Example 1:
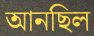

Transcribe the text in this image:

আনছিল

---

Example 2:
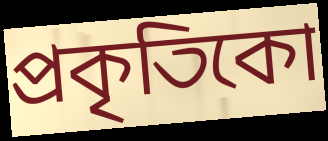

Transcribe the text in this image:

প্ৰকৃতিকো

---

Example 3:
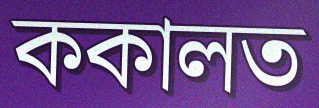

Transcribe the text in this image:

ককালত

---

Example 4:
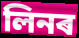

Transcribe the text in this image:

লিনৰ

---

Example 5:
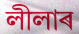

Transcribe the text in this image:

লীলাৰ